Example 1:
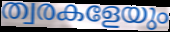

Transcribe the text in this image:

ത്വരകളേയും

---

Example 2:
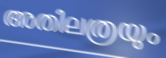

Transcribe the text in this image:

അതിലത്രയും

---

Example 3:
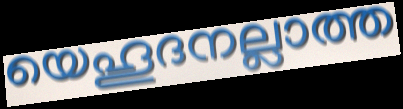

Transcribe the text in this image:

യെഹൂദനല്ലാത്ത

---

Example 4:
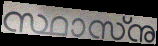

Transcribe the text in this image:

സ്ഥാസ്നു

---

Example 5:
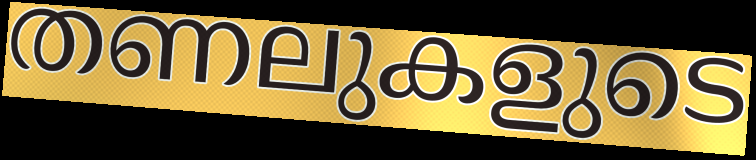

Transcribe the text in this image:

തണലുകളുടെ